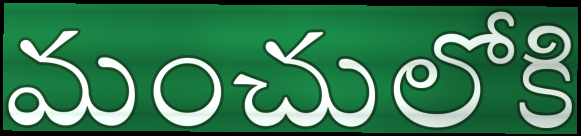
మంచులోకి